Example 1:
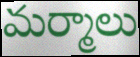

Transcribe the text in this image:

మర్మాలు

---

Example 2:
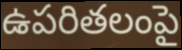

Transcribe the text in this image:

ఉపరితలంపై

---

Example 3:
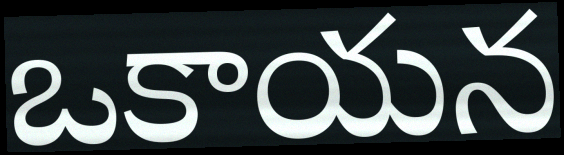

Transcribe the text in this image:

ఒకాయన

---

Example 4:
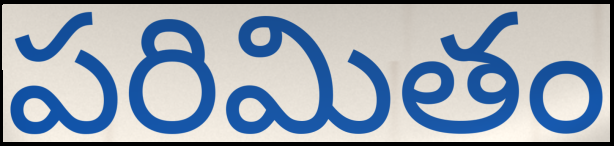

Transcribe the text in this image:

పరిమితం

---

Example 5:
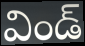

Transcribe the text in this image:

విండ్